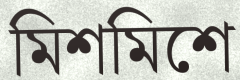
মিশমিশে